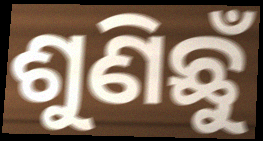
ଶୁଣିଛୁଁ